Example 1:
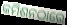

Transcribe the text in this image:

କମିଶନଠାରେ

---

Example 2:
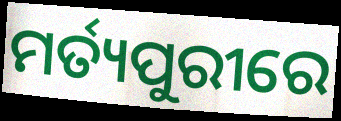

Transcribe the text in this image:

ମର୍ତ୍ୟପୁରୀରେ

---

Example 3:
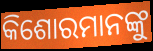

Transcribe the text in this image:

କିଶୋରମାନଙ୍କୁ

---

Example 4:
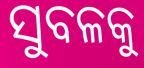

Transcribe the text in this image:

ସୁବଳକୁ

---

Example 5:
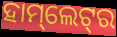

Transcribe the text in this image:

ହାମ୍‌ଲେଟ୍‌ର